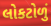
લોકટોળું